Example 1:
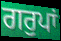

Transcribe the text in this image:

ਗਰੁਪਾਂ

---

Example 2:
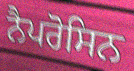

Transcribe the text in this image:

ਨੈਪਰੋਸਿਨ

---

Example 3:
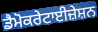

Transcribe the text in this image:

ਡੈਮੋਕਰੇਟਾਈਜ਼ੇਸ਼ਨ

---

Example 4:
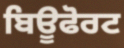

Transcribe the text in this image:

ਬਿਊਫੋਰਟ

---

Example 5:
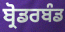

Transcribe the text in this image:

ਬ੍ਰੋਡਰਬੰਡ